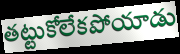
తట్టుకోలేకపోయాడు